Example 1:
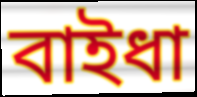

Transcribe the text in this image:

বাইধা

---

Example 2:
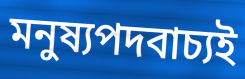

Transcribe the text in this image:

মনুষ্যপদবাচ্যই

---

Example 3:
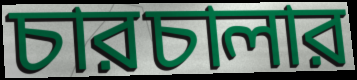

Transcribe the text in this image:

চারচালার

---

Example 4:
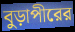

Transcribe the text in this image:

বুড়াপীরের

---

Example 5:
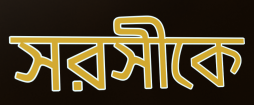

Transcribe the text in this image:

সরসীকে